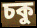
চকু